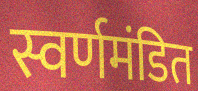
स्वर्णमंडित